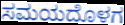
ಸಮಯದೊಳಗ